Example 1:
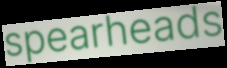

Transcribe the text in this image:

spearheads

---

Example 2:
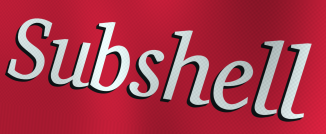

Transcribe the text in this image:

Subshell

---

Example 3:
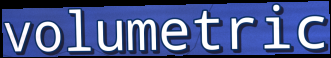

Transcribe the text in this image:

volumetric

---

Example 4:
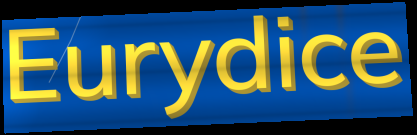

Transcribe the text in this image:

Eurydice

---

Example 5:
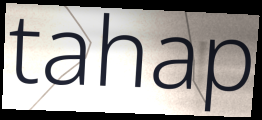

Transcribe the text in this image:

tahap